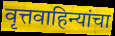
वृत्तवाहिन्यांचा